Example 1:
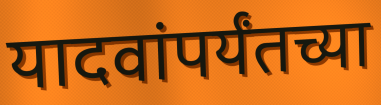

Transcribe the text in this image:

यादवांपर्यंतच्या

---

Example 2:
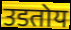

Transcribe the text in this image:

उडतोय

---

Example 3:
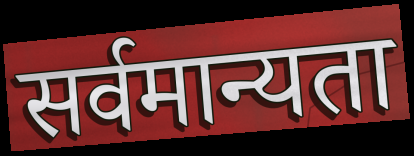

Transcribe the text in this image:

सर्वमान्यता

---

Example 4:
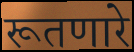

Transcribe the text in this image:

रूतणारे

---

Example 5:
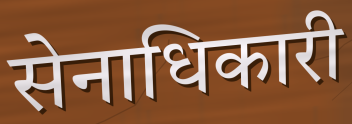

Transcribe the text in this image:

सेनाधिकारी